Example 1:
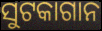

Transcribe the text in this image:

ସୁଟକାଗାନ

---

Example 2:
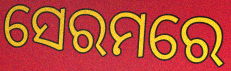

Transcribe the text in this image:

ସେରମରେ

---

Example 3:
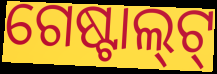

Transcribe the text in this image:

ଗେଷ୍ଟାଲ୍‌ଟ୍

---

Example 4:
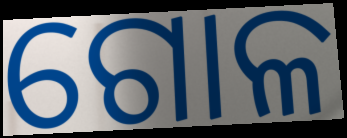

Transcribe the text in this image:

ଗୋଳ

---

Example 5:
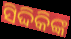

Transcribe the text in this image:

ସିଦ୍ଦିକିଙ୍କ